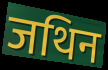
जथिन